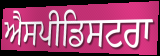
ਐਸਪੀਡਿਸਟਰਾ